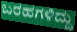
ಬರಹಗಳಿದ್ದು